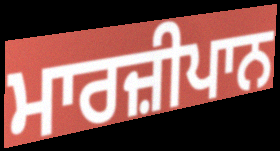
ਮਾਰਜ਼ੀਪਾਨ